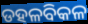
ଡହଳବିକଳ